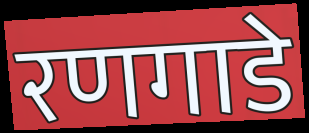
रणगाडे